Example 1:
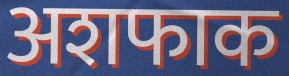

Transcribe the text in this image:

अशफाक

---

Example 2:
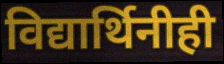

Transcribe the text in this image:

विद्यार्थिनीही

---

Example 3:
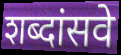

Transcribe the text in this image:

शब्दांसवे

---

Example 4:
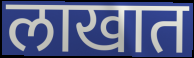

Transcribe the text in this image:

लाखात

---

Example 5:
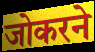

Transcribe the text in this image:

जोकरने